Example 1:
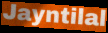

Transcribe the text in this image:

Jayntilal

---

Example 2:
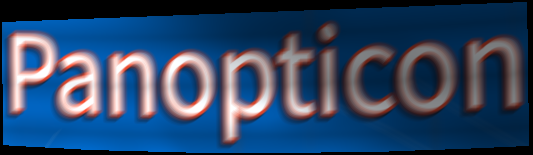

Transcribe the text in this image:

Panopticon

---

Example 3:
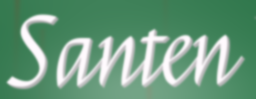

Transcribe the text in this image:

Santen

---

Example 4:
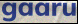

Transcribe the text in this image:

gaaru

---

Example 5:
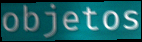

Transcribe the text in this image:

objetos